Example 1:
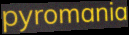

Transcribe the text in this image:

pyromania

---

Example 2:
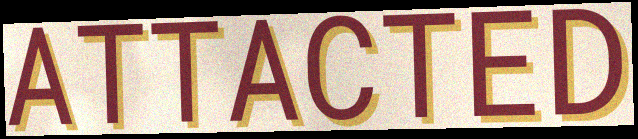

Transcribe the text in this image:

ATTACTED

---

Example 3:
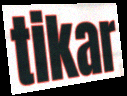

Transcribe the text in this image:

tikar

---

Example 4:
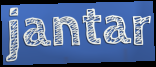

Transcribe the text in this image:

jantar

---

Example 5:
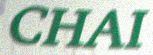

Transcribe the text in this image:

CHAI